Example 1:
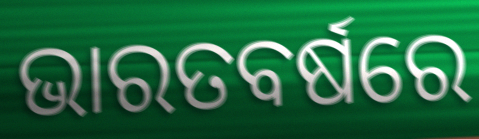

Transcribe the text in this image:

ଭାରତବର୍ଷରେ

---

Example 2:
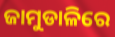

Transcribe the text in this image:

ଜାମୁଡାଳିରେ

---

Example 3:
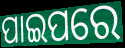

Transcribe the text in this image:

ପାଇପରେ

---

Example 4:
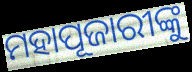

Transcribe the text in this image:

ମହାପୂଜାରୀଙ୍କୁ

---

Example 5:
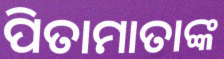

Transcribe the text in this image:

ପିତାମାତାଙ୍କ